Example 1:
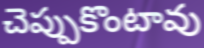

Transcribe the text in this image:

చెప్పుకొంటావు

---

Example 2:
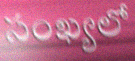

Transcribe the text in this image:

సంఖ్యలో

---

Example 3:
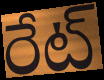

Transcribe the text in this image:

రేట్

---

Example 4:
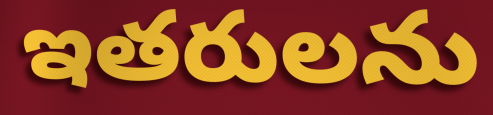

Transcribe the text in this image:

ఇతరులను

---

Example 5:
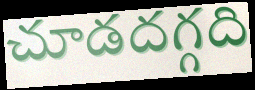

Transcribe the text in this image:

చూడదగ్గది